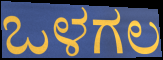
ಒಳಗಲ